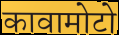
कावामोटो